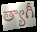
త్యాగీ